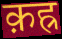
क़ह्र